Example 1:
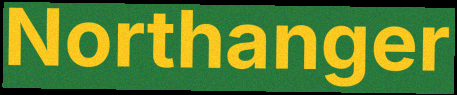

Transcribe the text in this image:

Northanger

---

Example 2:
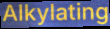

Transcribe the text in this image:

Alkylating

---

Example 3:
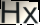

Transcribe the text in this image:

Hx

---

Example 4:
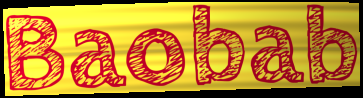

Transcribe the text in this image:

Baobab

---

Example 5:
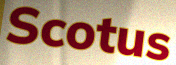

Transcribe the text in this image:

Scotus